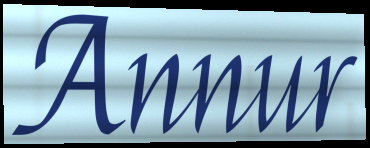
Annur